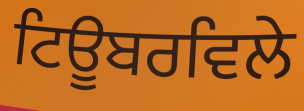
ਟਿਊਬਰਵਿਲੇ